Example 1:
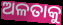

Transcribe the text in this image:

ଅଳତାକୁ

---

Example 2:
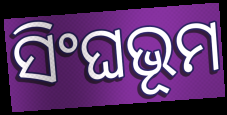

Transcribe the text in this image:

ସିଂଘଭୂମ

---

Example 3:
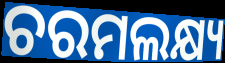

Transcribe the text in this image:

ଚରମଲକ୍ଷ୍ୟ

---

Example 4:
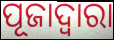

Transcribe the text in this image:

ପୂଜାଦ୍ଵାରା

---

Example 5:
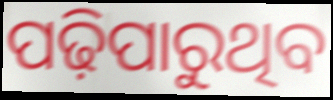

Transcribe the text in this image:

ପଢ଼ିପାରୁଥିବ